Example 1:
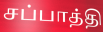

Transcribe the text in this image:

சப்பாத்தி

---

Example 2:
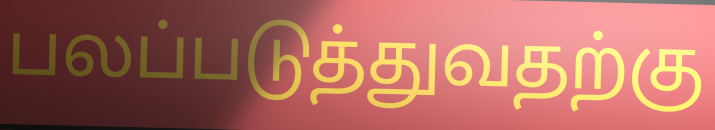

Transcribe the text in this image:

பலப்படுத்துவதற்கு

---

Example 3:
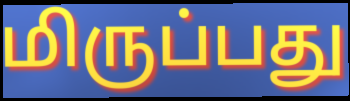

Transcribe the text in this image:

மிருப்பது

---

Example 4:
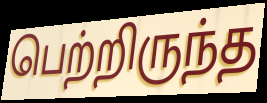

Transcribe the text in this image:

பெற்றிருந்த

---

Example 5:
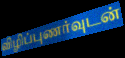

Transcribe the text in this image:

விழிப்புணர்வுடன்